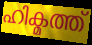
ഹിക്മത്ത്